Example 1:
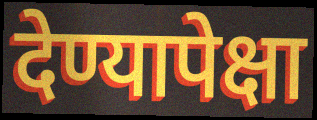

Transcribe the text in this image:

देण्यापेक्षा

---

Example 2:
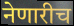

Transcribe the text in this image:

नेणारीच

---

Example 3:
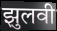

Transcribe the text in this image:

झुलवी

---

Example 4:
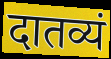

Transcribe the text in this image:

दातव्यं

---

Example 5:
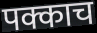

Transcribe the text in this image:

पक्काच